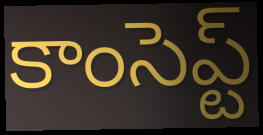
కాంసెప్ట్